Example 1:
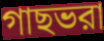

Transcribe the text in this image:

গাছভরা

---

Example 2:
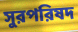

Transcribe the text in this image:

সুরপরিষদ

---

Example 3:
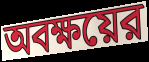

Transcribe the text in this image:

অবক্ষয়ের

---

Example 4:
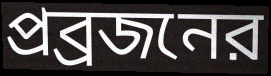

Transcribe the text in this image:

প্রব্রজনের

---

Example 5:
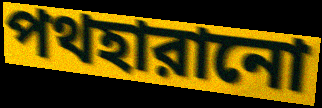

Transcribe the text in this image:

পথহারানো